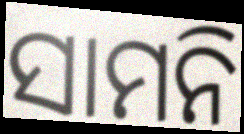
ସାମନି